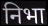
निभा